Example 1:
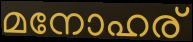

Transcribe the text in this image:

മനോഹര്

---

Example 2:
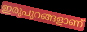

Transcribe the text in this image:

ഇരുപുറങ്ങളാണ്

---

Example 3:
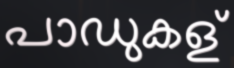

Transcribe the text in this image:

പാഡുകള്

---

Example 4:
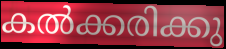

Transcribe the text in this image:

കൽക്കരിക്കു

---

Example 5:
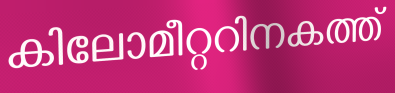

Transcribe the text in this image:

കിലോമീറ്ററിനകത്ത്